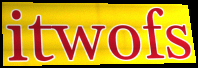
itwofs